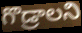
గొడ్రాలని